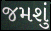
જમશું